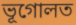
ভূগোলত